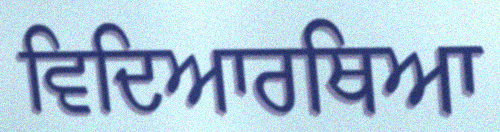
ਵਿਦਿਆਰਥਿਆ